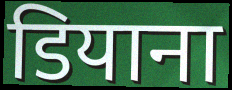
डियाना